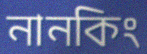
নানকিং